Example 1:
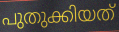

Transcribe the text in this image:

പുതുക്കിയത്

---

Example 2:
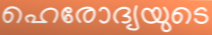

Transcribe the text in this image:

ഹെരോദ്യയുടെ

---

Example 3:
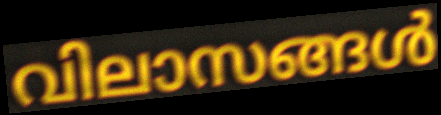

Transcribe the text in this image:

വിലാസങ്ങൾ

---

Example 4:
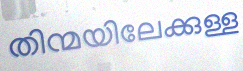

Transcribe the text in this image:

തിന്മയിലേക്കുള്ള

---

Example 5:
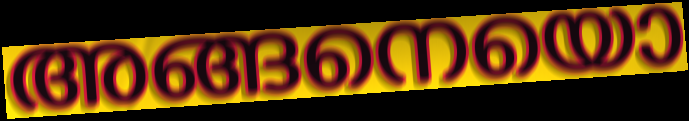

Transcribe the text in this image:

അങ്ങനെയൊ